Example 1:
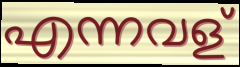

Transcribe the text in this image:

എന്നവള്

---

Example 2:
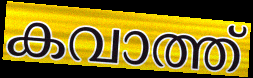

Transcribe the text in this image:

കവാത്ത്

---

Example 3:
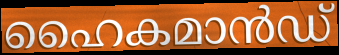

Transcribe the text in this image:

ഹൈകമാൻഡ്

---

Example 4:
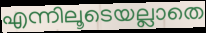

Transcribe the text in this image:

എന്നിലൂടെയല്ലാതെ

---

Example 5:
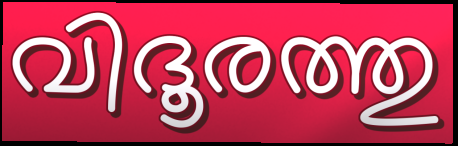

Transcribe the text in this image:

വിദൂരത്തു